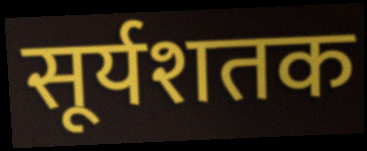
सूर्यशतक